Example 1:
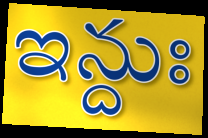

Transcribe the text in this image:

ఇన్దుః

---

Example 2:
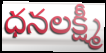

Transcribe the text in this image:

ధనలక్ష్మీ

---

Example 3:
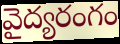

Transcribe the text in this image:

వైద్యరంగం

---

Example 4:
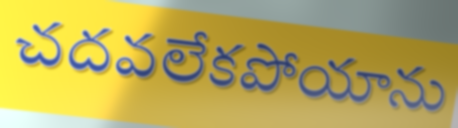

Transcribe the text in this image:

చదవలేకపోయాను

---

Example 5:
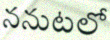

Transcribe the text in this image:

ననుటలో